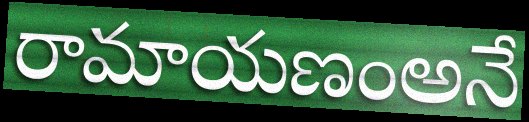
రామాయణంఅనే